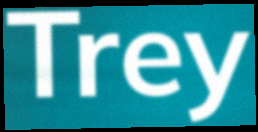
Trey